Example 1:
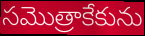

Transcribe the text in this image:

సమొత్రాకేకును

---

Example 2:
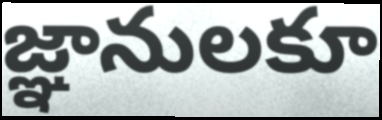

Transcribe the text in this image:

జ్ఞానులకూ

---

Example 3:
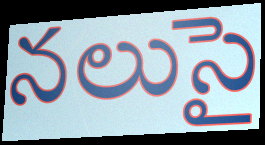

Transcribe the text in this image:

నలుసై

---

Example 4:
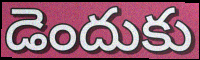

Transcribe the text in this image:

డెందుకు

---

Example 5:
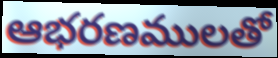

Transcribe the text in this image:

ఆభరణములతో